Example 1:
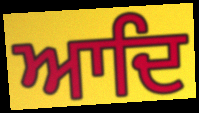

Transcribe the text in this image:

ਆਦਿ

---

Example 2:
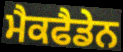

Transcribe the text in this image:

ਮੈਕਫੈਡੇਨ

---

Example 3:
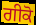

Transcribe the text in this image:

ਗੀਕੋ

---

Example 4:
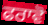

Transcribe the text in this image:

ਫਰਾਵੋ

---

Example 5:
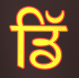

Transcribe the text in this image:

ਡਿੱ